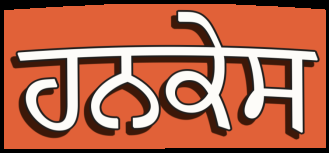
ਹਨਕੇਸ